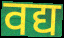
वद्य